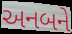
અનબને